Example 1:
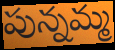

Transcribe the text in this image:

పున్నమ్మ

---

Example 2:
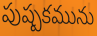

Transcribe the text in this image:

పుష్పకమును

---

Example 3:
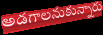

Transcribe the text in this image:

అడగాలనుకున్నారు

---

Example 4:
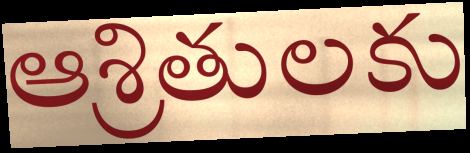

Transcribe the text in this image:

ఆశ్రితులకు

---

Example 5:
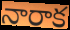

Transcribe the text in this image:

నారాక